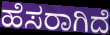
ಹೆಸರಾಗಿದೆ